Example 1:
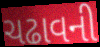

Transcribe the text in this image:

ચઢાવની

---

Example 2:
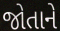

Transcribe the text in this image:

જોતાને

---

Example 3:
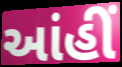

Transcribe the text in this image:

આંહીં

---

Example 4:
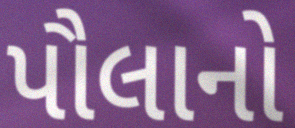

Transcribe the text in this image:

પૌલાનો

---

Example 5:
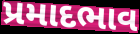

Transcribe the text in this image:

પ્રમાદભાવ